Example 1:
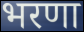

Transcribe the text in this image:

भरणा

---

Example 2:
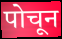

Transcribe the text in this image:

पोचून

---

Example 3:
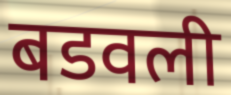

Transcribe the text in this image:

बडवली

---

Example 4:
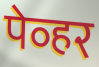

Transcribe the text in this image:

पेव्हर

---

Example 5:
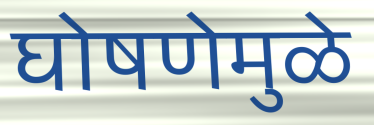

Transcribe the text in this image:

घोषणेमुळे